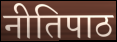
नीतिपाठ